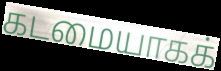
கடமையாகக்